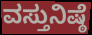
ವಸ್ತುನಿಷ್ಠೆ